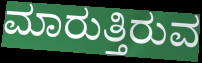
ಮಾರುತ್ತಿರುವ